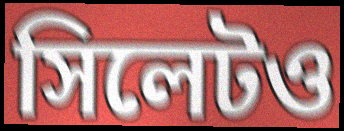
সিলেটও